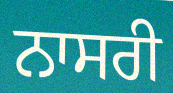
ਨਾਸਰੀ